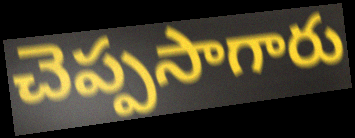
చెప్పసాగారు